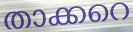
താക്കറെ